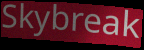
Skybreak